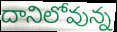
దానిలోవున్న